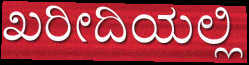
ಖರೀದಿಯಲ್ಲಿ